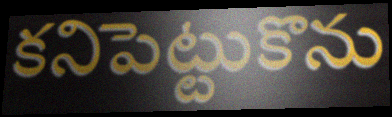
కనిపెట్టుకొను